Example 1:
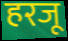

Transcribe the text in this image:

हरजू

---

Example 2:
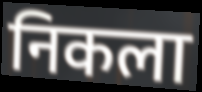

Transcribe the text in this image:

निकला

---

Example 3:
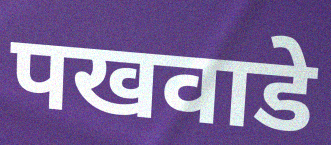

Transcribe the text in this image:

पखवाडे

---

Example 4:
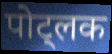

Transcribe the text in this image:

पोट्लक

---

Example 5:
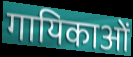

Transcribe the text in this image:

गायिकाओं